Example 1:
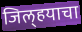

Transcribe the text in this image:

जिल्हयाचा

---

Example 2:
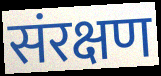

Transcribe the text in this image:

संरक्षण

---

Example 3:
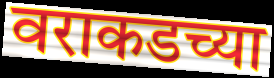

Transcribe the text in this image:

वराकडच्या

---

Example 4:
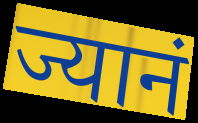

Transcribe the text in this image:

ज्यानं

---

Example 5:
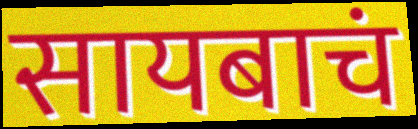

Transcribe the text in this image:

सायबाचं